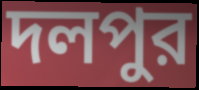
দলপুর